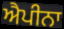
ਐਪੀਨਾ